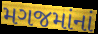
મગજમાંનાં